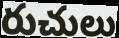
రుచులు